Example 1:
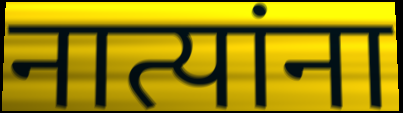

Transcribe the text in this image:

नात्यांना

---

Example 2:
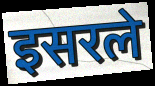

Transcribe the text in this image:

इसरले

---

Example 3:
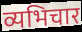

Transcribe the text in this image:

व्यभिचार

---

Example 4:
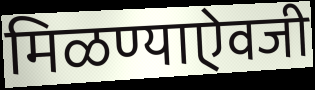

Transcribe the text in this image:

मिळण्याऐवजी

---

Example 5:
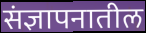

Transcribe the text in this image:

संज्ञापनातील